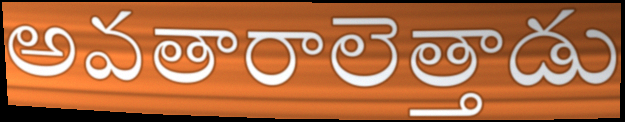
అవతారాలెత్తాడు